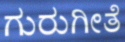
ಗುರುಗೀತೆ